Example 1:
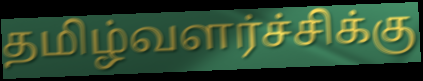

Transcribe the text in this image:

தமிழ்வளர்ச்சிக்கு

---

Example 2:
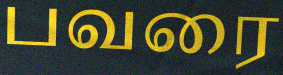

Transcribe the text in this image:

பவரை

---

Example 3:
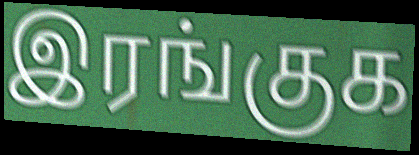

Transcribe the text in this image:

இரங்குக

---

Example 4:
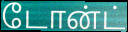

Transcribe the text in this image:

டோன்ட்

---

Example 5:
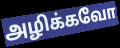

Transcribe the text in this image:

அழிக்கவோ